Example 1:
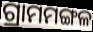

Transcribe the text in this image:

ଗ୍ରାମମଙ୍ଗଳ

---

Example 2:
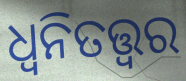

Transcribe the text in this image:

ଧ୍ଵନିତତ୍ତ୍ଵର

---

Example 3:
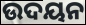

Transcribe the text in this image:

ଉଦୟନ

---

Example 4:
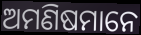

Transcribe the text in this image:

ଅମଣିଷମାନେ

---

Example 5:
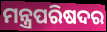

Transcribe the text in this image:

ମନ୍ତ୍ରପରିଷଦର